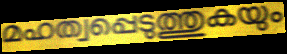
മഹത്വപ്പെടുത്തുകയും